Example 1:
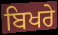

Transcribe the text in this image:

ਬਿਖਰੇ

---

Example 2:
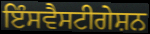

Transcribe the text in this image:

ਇੰਸਵੈਸਟੀਗੇਸ਼ਨ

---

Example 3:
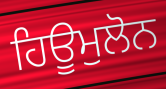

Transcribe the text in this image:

ਹਿਊਮੁਲੋਨ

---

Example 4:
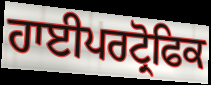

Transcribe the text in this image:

ਹਾਈਪਰਟ੍ਰੋਫਿਕ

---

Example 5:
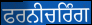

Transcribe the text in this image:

ਫਰਨੀਚਰਿੰਗ